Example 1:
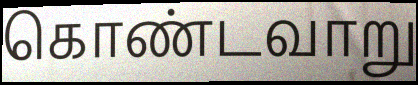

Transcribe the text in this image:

கொண்டவாறு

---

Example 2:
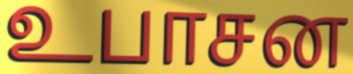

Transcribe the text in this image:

உபாசன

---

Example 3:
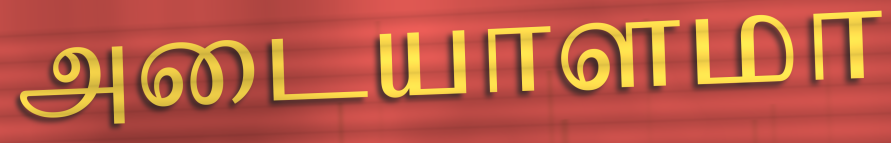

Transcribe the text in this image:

அடையாளமா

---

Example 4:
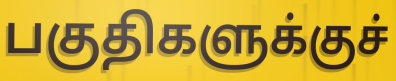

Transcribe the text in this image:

பகுதிகளுக்குச்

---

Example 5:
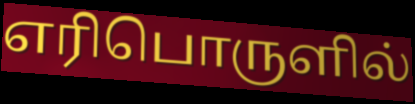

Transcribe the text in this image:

எரிபொருளில்